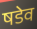
षडेव